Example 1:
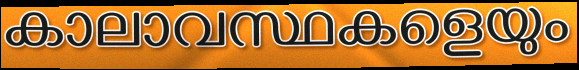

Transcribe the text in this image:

കാലാവസ്ഥകളെയും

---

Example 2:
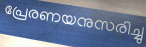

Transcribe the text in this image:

പ്രേരണയനുസരിച്ചു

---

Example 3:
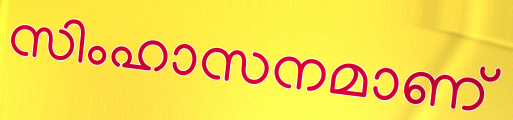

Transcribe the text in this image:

സിംഹാസനമാണ്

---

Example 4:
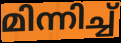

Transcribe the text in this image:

മിന്നിച്ച്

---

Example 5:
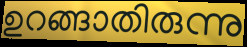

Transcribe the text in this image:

ഉറങ്ങാതിരുന്നു